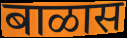
बाळास